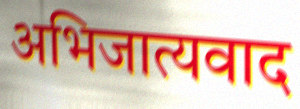
अभिजात्यवाद